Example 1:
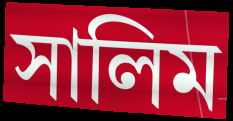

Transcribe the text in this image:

সালিম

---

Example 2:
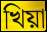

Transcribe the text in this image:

খিয়া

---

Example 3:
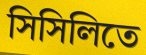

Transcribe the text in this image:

সিসিলিতে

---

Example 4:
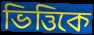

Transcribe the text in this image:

ভিত্তিকে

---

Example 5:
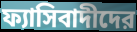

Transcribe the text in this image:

ফ্যাসিবাদীদের